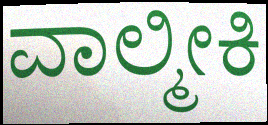
ವಾಲ್ಮೀಕಿ